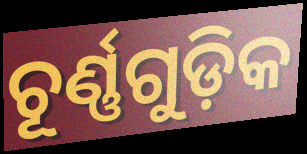
ଚୂର୍ଣ୍ଣଗୁଡ଼ିକ